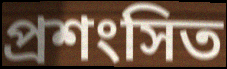
প্ৰশংসিত